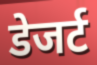
डेजर्ट